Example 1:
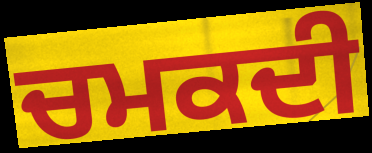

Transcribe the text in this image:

ਚਮਕਦੀ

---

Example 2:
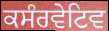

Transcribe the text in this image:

ਕਸੰਰਵੇਟਿਵ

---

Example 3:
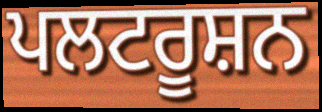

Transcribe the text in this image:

ਪਲਟਰੂਸ਼ਨ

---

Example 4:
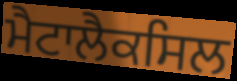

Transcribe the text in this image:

ਮੈਟਾਲੈਕਸਿਲ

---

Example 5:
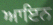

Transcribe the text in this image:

ਆਇਨ